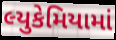
લ્યુકેમિયામાં